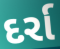
દર્રા